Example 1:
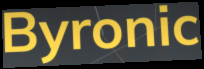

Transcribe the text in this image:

Byronic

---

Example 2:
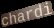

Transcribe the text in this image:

chardi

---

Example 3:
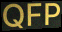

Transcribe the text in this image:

QFP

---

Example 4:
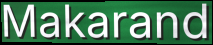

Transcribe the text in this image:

Makarand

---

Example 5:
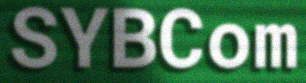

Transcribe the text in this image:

SYBCom